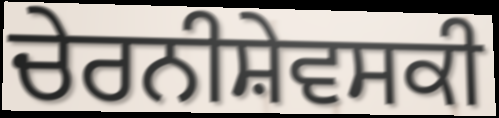
ਚੇਰਨੀਸ਼ੇਵਸਕੀ